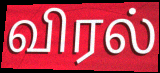
விரல்